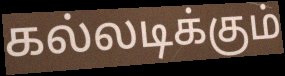
கல்லடிக்கும்